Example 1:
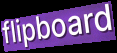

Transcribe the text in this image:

flipboard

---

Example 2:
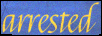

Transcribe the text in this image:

arrested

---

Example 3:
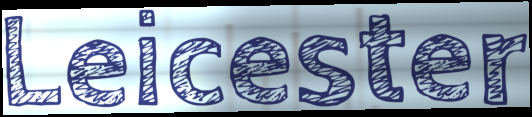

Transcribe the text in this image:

Leicester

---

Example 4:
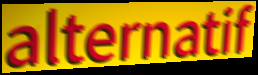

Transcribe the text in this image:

alternatif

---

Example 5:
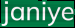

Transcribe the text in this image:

janiye